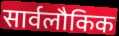
सार्वलौकिक